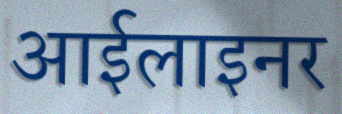
आईलाइनर